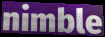
nimble